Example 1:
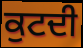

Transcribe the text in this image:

ਕੁਟਦੀ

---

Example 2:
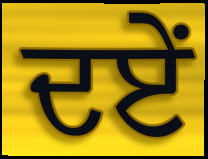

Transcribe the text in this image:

ਦਏਂ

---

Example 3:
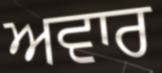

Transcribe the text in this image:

ਅਵਾਰ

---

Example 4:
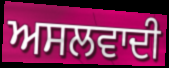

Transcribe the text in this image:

ਅਸਲਵਾਦੀ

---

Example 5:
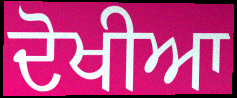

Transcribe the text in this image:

ਦੋਖੀਆ